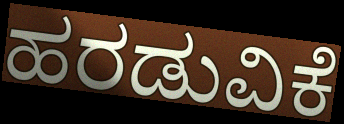
ಹರಡುವಿಕೆ